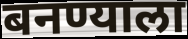
बनण्याला